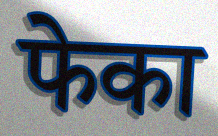
फेका